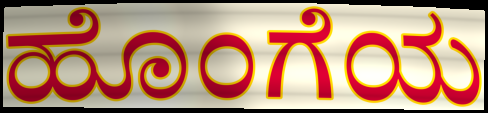
ಹೊಂಗೆಯ